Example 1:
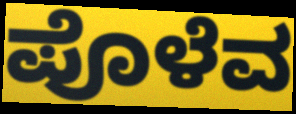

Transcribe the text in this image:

ಪೊಳೆವ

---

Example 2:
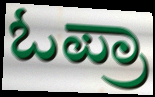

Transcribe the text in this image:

ಓಪ್ರಾ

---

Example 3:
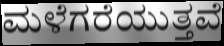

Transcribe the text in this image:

ಮಳೆಗರೆಯುತ್ತವೆ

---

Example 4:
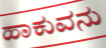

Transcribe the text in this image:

ಹಾಕುವನು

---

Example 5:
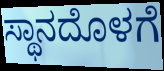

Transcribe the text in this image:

ಸ್ಥಾನದೊಳಗೆ